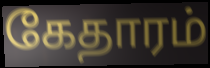
கேதாரம்